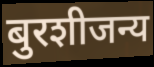
बुरशीजन्य